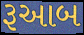
રૂઆબ